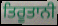
ਤਿਰੂਤਾਨੀ